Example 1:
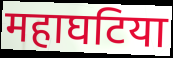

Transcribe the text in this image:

महाघटिया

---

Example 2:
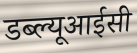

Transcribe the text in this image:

डब्ल्यूआईसी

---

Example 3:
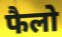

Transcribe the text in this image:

फैलो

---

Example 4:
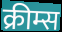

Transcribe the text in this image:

क्रीम्‍स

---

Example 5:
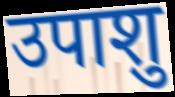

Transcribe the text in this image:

उपाशु